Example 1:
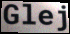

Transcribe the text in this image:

Glej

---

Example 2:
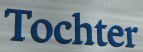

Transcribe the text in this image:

Tochter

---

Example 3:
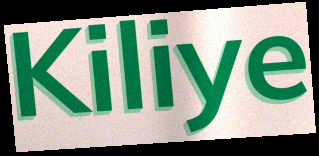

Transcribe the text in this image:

Kiliye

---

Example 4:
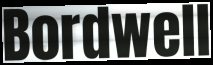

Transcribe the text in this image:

Bordwell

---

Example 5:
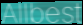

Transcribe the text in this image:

Allbest